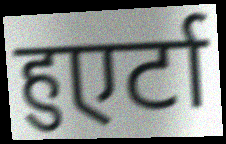
हुएर्टा